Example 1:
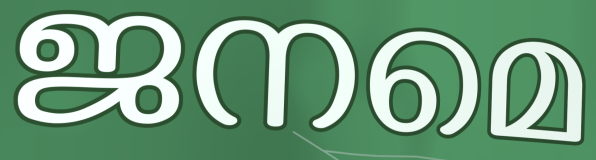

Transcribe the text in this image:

ജനമെ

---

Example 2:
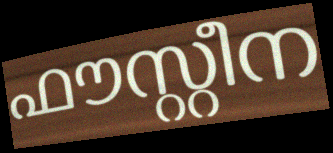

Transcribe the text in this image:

ഫൗസ്റ്റീന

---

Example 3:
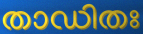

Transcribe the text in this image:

താഡിതഃ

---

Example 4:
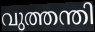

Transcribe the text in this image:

വുത്തന്തി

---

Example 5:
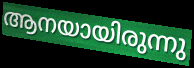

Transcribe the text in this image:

ആനയായിരുന്നു